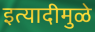
इत्यादीमुळे